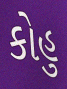
કોહુ